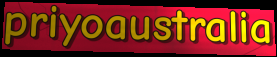
priyoaustralia